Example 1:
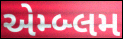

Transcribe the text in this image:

એમ્બ્લમ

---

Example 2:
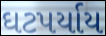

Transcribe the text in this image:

ઘટપર્યાય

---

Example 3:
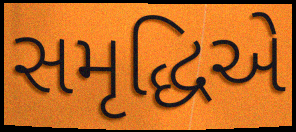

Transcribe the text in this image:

સમૃદ્ધિએ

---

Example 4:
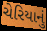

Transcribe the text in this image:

ચેરિયાનું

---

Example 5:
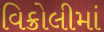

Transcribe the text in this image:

વિક્રોલીમાં